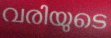
വരിയുടെ